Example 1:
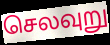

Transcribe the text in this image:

செலவுறு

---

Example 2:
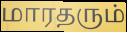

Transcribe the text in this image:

மாரதரும்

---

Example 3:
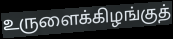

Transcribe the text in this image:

உருளைக்கிழங்குத்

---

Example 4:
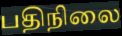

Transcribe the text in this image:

பதிநிலை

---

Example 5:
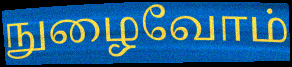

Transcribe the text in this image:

நுழைவோம்